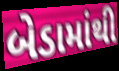
બેડામાંથી